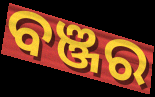
ବଞ୍ଜର